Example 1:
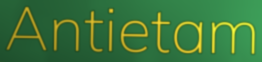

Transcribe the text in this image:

Antietam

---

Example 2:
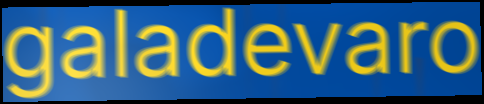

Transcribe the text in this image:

galadevaro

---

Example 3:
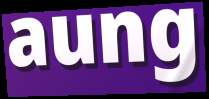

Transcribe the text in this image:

aung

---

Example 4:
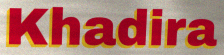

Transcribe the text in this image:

Khadira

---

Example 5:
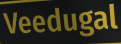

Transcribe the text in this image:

Veedugal